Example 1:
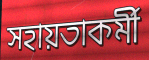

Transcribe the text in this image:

সহায়তাকর্মী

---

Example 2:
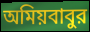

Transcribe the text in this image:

অমিয়বাবুর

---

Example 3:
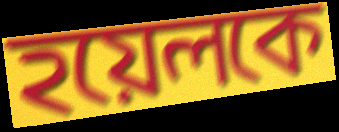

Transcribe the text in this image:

হয়েলকে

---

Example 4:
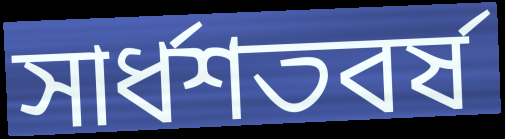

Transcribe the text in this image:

সার্ধশতবর্ষ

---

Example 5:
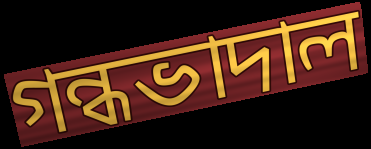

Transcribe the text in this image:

গন্ধভাদাল